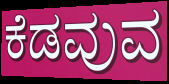
ಕೆಡವುವ